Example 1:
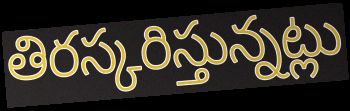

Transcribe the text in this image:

తిరస్కరిస్తున్నట్లు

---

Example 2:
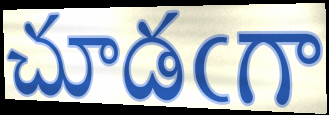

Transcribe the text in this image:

చూడఁగా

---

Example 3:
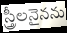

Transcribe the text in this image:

స్త్రీలనైనను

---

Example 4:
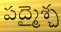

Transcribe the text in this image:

పద్మైశ్చ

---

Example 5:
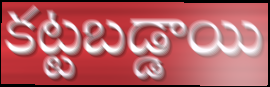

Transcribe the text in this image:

కట్టబడ్డాయి